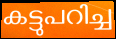
കട്ടുപറിച്ച